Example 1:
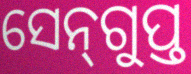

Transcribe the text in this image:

ସେନ୍‌ଗୁପ୍ତ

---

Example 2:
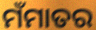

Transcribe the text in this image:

ମଁମାତର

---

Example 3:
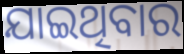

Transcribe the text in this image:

ଯାଇଥିବାର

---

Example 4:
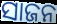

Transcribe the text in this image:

ସାଜନ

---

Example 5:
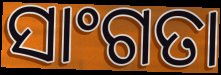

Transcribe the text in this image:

ସାଂଗତା